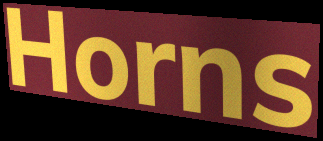
Horns